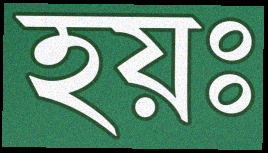
হয়ঃ